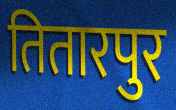
तितारपुर